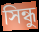
সিন্ধু